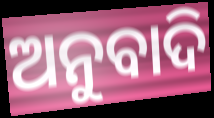
ଅନୁବାଦି